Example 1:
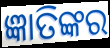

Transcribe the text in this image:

ଜ୍ଞାତିଙ୍କର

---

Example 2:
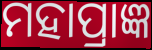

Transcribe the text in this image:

ମହାପ୍ରାଜ୍ଞ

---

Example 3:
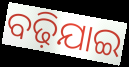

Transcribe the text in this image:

ବଢ଼ିଯାଇ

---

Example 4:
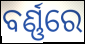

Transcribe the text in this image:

ବର୍ଣ୍ଣରେ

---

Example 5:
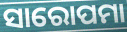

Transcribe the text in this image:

ସାରୋପମା